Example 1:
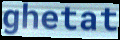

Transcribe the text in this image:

ghetat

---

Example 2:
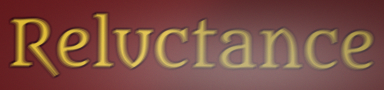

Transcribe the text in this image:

Reluctance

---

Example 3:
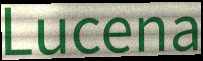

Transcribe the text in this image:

Lucena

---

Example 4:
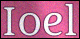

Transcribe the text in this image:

Ioel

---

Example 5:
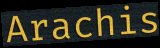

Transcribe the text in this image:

Arachis